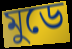
মুডে